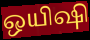
ஒயிஷி